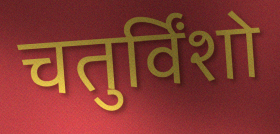
चतुर्विंशो